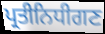
ਪ੍ਰਤੀਨਿਧੀਗਣ